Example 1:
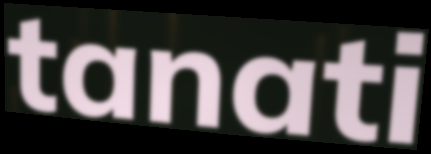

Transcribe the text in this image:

tanati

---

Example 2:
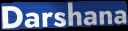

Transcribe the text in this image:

Darshana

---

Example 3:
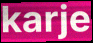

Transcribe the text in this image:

karje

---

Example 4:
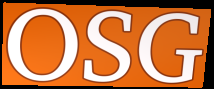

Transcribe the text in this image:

OSG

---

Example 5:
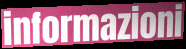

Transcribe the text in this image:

informazioni